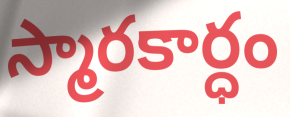
స్మారకార్ధం